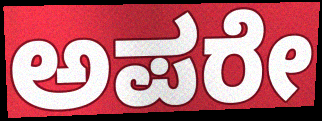
ಅಪರೇ